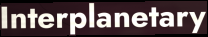
Interplanetary